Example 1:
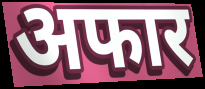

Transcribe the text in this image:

अफार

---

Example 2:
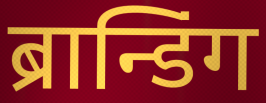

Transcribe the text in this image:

ब्रान्डिंग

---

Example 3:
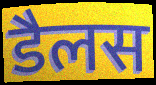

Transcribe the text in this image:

डैलस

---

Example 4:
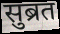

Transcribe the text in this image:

सुब्रत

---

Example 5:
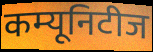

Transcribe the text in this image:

कम्यूनिटीज